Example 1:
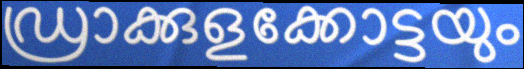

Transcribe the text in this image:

ഡ്രാക്കുളക്കോട്ടയും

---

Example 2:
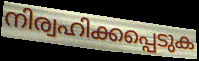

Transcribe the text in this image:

നിര്വഹിക്കപ്പെടുക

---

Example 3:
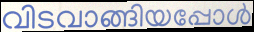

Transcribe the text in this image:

വിടവാങ്ങിയപ്പോൾ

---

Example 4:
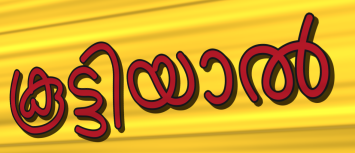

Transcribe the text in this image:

കൂട്ടിയാൽ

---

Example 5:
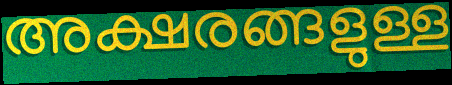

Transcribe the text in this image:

അക്ഷരങ്ങളുള്ള